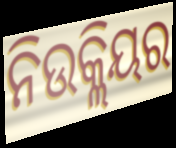
ନିଉକ୍ଲିୟର